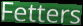
Fetters